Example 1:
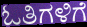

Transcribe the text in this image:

ಓತಿಗಳಿಗೆ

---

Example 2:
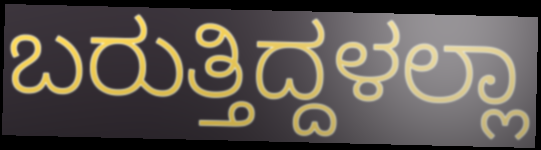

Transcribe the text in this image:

ಬರುತ್ತಿದ್ದಳಲ್ಲಾ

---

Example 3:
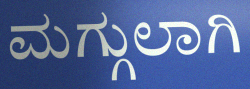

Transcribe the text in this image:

ಮಗ್ಗುಲಾಗಿ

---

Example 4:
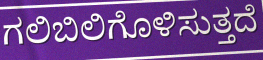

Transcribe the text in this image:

ಗಲಿಬಿಲಿಗೊಳಿಸುತ್ತದೆ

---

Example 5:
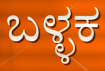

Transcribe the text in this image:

ಬಳ್ಳಕ